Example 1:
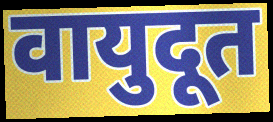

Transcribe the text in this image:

वायुदूत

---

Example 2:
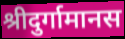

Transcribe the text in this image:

श्रीदुर्गामानस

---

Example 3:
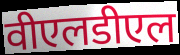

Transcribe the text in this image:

वीएलडीएल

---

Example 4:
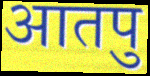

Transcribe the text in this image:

आतपु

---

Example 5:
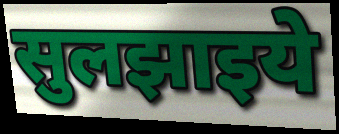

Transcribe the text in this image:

सुलझाइये